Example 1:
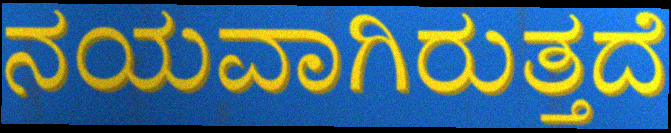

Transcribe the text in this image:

ನಯವಾಗಿರುತ್ತದೆ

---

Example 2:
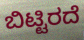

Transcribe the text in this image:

ಬಿಟ್ಟಿರದೆ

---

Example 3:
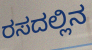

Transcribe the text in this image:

ರಸದಲ್ಲಿನ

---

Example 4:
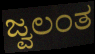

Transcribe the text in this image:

ಜ್ವಲಂತ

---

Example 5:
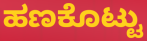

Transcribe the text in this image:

ಹಣಕೊಟ್ಟು